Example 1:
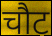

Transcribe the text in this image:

चौट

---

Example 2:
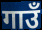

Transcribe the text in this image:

गाउँ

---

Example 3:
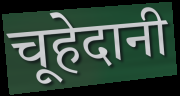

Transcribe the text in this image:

चूहेदानी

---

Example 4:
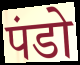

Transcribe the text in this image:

पंडो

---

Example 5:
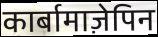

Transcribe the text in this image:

कार्बामाज़ेपिन